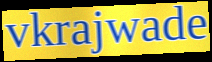
vkrajwade